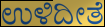
ಉಳಿದೀತೆ